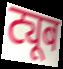
ट्यूब